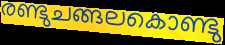
രണ്ടുചങ്ങലകൊണ്ടു